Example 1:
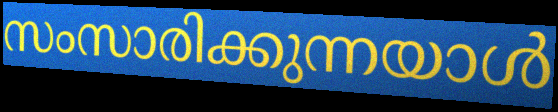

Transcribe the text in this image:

സംസാരിക്കുന്നയാൾ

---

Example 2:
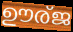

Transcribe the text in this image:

ഊര്ജ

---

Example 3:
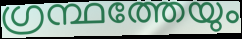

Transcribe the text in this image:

ഗ്രന്ഥത്തേയും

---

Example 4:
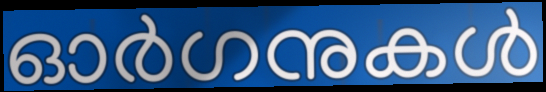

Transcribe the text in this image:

ഓർഗനുകൾ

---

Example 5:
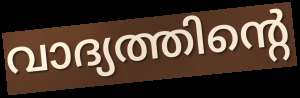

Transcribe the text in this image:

വാദ്യത്തിന്റെ